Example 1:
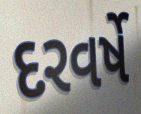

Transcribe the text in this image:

દરવર્ષે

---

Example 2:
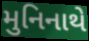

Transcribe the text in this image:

મુનિનાથે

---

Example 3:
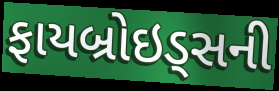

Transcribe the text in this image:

ફાયબ્રોઇડ્સની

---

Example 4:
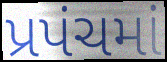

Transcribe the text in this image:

પ્રપંચમાં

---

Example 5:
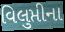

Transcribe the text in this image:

વિલુપ્તીના